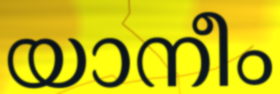
യാനീം